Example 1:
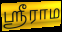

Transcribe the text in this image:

ஸ்ரீராம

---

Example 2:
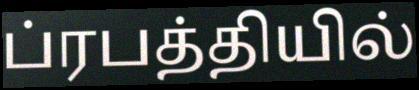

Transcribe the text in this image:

ப்ரபத்தியில்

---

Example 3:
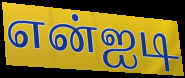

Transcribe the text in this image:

என்ஐடி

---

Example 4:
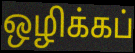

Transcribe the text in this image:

ஒழிக்கப்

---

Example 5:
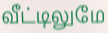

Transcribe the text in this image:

வீட்டிலுமே